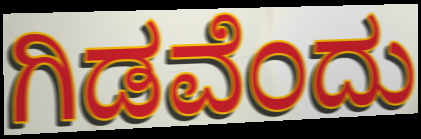
ಗಿಡವೆಂದು